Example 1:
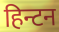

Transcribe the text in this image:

हिन्टन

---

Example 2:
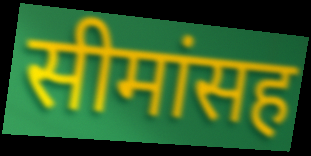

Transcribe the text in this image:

सीमांसह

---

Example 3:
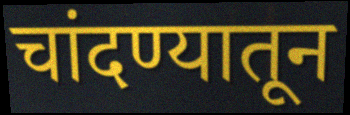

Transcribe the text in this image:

चांदण्यातून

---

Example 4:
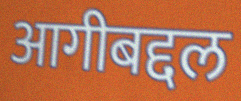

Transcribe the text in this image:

आगीबद्दल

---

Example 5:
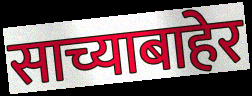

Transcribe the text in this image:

साच्याबाहेर